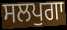
ਸਲਪੁਗਾ